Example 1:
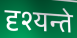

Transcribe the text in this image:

दृश्यन्ते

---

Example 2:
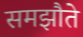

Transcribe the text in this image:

समझौते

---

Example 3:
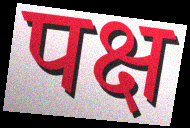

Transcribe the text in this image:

पक्ष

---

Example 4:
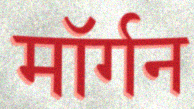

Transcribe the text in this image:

मॉर्गन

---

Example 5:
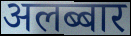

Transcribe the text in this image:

अलब्बार